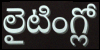
లైటింగ్లో